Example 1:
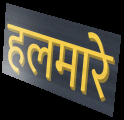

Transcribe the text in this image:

हलमारे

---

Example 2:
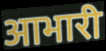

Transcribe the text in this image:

आभारी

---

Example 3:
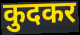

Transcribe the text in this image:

कुदकर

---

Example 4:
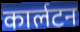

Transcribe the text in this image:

कार्लटन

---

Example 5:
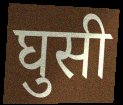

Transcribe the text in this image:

घुसी